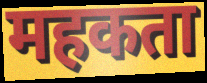
महकता